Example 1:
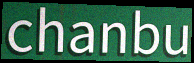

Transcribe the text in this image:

chanbu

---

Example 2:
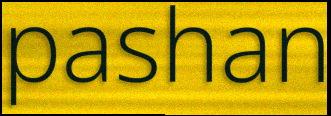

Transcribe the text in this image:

pashan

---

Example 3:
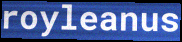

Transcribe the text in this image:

royleanus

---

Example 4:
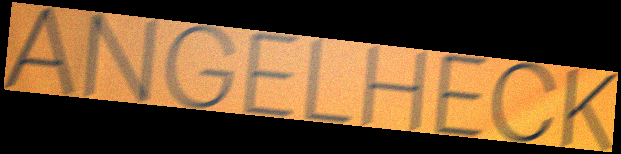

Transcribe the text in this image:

ANGELHECK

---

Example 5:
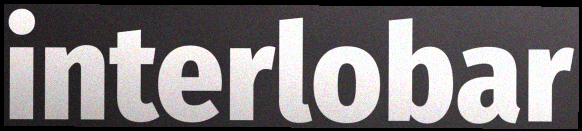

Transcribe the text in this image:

interlobar